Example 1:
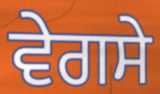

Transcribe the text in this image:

ਵੇਗਸੇ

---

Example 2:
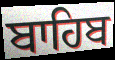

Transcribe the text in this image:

ਬਾਹਿਬ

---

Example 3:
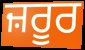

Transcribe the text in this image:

ਜ਼ਰੂਰ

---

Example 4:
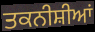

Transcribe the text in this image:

ਤਕਨੀਸ਼ੀਆਂ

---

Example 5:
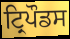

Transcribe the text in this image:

ਟ੍ਰਿਪੌਡਸ